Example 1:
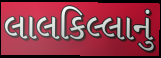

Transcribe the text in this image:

લાલકિલ્લાનું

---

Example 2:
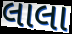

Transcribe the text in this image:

લાલા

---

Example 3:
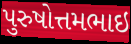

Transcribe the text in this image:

પુરુષોત્તમભાઇ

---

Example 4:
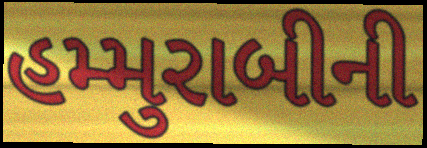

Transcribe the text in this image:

હમ્મુરાબીની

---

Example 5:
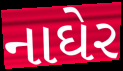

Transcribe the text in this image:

નાઘેર